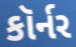
કૉર્નર